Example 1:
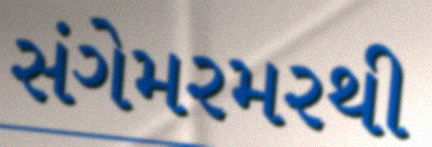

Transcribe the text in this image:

સંગેમરમરથી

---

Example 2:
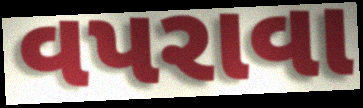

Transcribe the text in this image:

વપરાવા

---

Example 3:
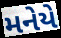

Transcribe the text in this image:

મનેયે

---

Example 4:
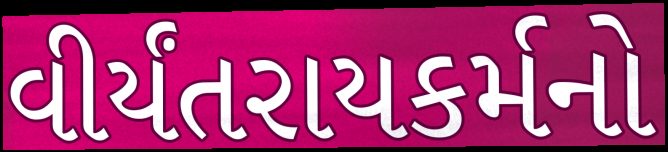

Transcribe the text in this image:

વીર્યંતરાયકર્મનો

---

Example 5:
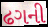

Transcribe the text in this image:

ઢગની